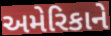
અમેરિકાને